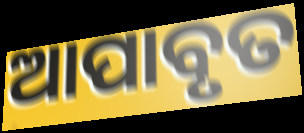
ଆପାବୃତ